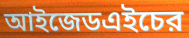
আইজেডএইচের